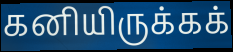
கனியிருக்கக்